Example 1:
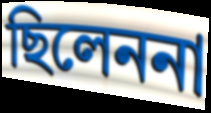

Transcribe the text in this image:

ছিলেননা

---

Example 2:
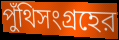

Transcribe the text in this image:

পুঁথিসংগ্রহের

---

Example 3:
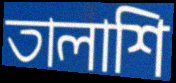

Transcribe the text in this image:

তালাশি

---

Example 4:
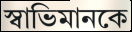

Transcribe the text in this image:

স্বাভিমানকে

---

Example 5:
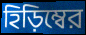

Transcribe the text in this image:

হিড়িম্বের